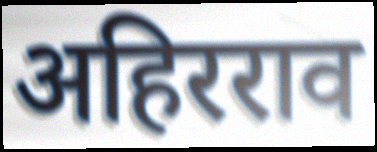
अहिरराव